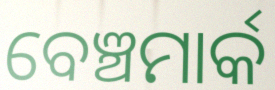
ବେଞ୍ଚମାର୍କ